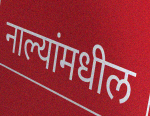
नाल्यांमधील